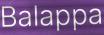
Balappa